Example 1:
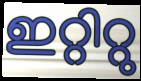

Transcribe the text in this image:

ഇറ്റിറ്റു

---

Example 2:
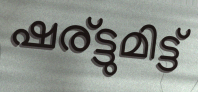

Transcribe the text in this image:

ഷര്ട്ടുമിട്ട്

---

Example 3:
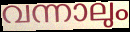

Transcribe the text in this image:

വന്നാലും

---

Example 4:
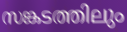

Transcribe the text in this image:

സങ്കടത്തിലും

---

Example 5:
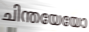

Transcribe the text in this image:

ചിന്തയേയോ